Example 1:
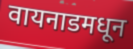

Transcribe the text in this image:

वायनाडमधून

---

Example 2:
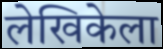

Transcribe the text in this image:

लेखिकेला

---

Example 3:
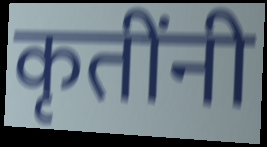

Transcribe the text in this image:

कृतींनी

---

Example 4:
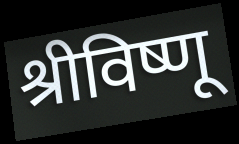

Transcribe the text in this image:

श्रीविष्णू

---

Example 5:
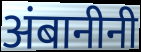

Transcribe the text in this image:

अंबानीनी